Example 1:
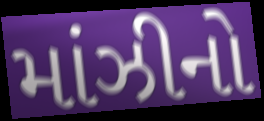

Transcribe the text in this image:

માંઝીનો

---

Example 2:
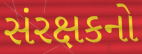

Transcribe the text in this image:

સંરક્ષકનો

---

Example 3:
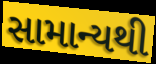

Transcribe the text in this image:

સામાન્યથી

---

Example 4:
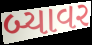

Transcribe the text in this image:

બ્યાવર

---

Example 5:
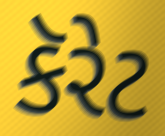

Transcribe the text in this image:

કૅરેટ